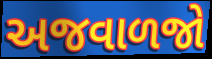
અજવાળજો